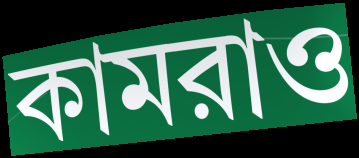
কামরাও